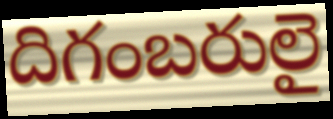
దిగంబరులై